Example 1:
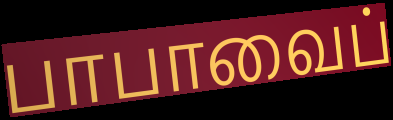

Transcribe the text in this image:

பாபாவைப்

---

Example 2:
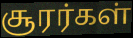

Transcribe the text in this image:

சூரர்கள்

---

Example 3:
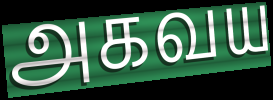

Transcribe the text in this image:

அகவய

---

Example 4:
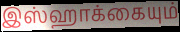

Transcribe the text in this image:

இஸ்ஹாக்கையும்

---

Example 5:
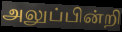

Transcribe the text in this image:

அலுப்பின்றி